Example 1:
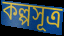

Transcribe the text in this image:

কল্পসূত্র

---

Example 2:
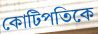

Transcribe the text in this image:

কোটিপতিকে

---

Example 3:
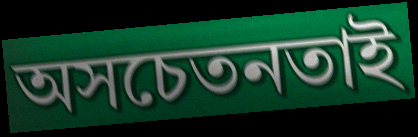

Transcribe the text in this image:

অসচেতনতাই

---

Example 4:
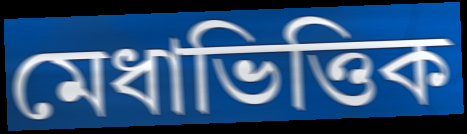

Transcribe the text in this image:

মেধাভিত্তিক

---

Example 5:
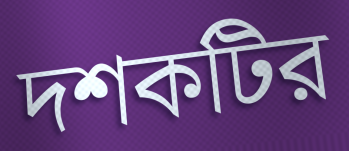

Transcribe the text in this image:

দশকটির